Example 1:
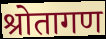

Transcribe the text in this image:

श्रोतागण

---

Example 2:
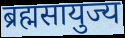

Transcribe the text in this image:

ब्रह्मसायुज्य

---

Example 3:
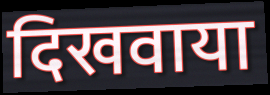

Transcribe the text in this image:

दिखवाया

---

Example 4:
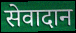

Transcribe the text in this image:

सेवादान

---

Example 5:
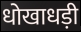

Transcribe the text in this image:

धोखाधड़ी